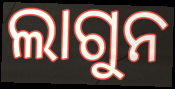
ଲାଗୁନ